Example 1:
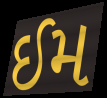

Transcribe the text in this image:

ઈમ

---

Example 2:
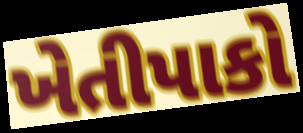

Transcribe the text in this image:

ખેતીપાકો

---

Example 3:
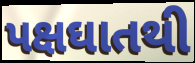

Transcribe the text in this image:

પક્ષઘાતથી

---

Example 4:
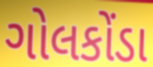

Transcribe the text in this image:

ગોલકોંડા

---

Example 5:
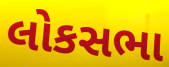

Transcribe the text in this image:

લોકસભા